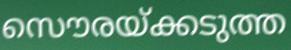
സൌരയ്ക്കടുത്ത